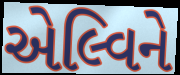
એલ્વિને